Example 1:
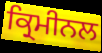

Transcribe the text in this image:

ਕ੍ਰਿਮੀਨਲ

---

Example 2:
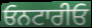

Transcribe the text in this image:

ਓਨਟਾਰੀਓ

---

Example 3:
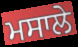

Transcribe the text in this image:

ਮਸਾਲੇ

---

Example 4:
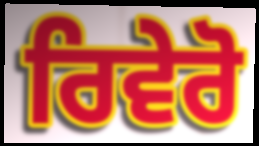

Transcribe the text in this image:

ਰਿਵੇਰੋ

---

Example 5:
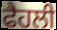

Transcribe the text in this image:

ਫੈਹਲੀ